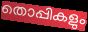
തൊപ്പികളും